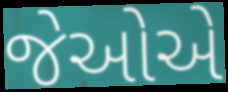
જેઓએ